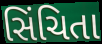
સિંચિતા